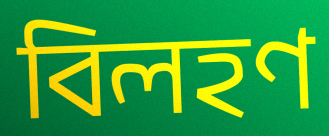
বিলহণ